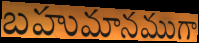
బహుమానముగా